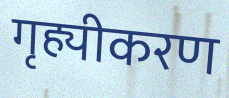
गृह्यीकरण